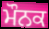
ਮੌਨਕ